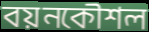
বয়নকৌশল